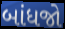
બાંધજો